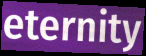
eternity